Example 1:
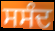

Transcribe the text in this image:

ਸਸੰਦ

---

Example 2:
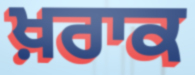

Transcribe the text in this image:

ਖ਼ਰਾਕ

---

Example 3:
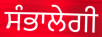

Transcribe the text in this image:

ਸੰਭਾਲੇਗੀ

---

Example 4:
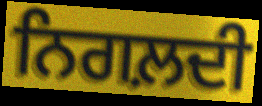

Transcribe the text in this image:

ਨਿਗਲ਼ਦੀ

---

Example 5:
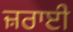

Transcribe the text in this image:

ਜ਼ਰਾਈ